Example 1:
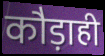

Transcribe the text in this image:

कौड़ाही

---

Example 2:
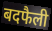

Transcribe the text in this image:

बदफैली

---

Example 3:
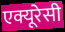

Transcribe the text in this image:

एक्यूरेसी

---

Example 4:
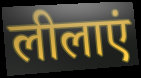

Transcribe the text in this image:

लीलाएं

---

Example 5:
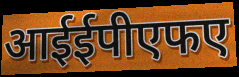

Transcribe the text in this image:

आईईपीएफए